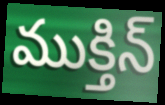
ముక్తిన్